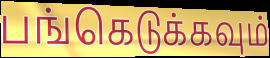
பங்கெடுக்கவும்